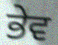
ਭੇਵ